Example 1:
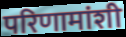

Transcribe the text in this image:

परिणामांशी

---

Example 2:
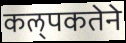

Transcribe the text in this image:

कल्पकतेने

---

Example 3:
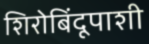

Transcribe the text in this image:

शिरोबिंदूपाशी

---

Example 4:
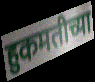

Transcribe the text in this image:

हुकमतीच्या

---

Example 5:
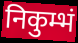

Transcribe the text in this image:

निकुम्भं